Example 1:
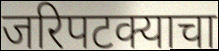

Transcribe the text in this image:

जरिपटक्याचा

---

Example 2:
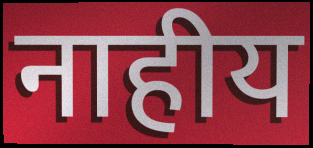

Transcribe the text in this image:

नाहीय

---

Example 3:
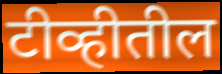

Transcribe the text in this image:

टीव्हीतील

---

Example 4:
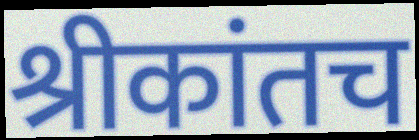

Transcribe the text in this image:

श्रीकांतच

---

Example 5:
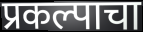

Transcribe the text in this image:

प्रकल्पाचा